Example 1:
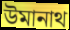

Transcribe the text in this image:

উমানাথ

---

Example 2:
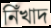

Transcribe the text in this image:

নিঁখাদ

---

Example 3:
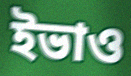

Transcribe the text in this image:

ইভাও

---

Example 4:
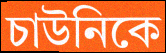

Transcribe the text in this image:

চাউনিকে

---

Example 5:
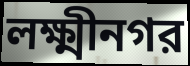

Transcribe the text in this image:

লক্ষ্মীনগর